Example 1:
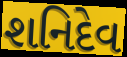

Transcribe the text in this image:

શનિદેવ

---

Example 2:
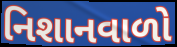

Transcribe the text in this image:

નિશાનવાળો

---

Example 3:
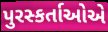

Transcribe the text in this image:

પુરસ્કર્તાઓએ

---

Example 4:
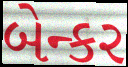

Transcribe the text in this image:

બેન્કર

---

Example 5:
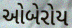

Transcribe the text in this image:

ઓબેરોય